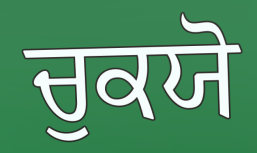
ਚੁਕਯੋ